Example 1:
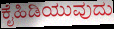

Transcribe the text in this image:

ಕೈಹಿಡಿಯುವುದು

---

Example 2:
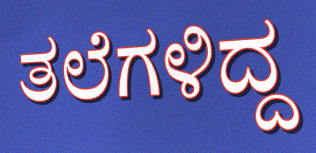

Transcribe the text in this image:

ತಲೆಗಳಿದ್ದ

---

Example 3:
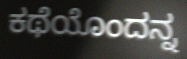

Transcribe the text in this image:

ಕಥೆಯೊಂದನ್ನ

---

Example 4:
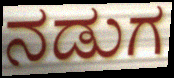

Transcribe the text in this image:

ನಡುಗ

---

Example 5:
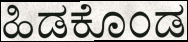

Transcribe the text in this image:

ಹಿಡಕೊಂಡ